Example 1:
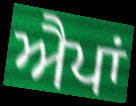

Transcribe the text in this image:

ਐਪਾਂ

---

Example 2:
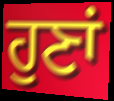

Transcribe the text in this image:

ਹੁਣਾਂ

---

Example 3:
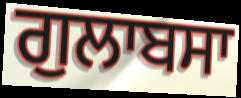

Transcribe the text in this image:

ਗੁਲਾਬਸਾ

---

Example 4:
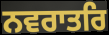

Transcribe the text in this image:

ਨਵਰਾਤਰਿ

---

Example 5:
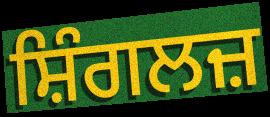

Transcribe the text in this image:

ਸ਼ਿੰਗਲਜ਼